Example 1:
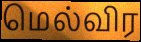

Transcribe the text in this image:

மெல்விர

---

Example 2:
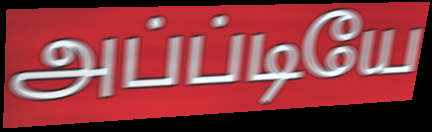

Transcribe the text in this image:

அப்ப்டியே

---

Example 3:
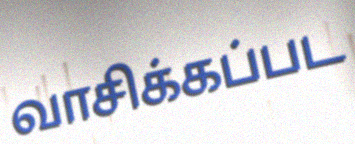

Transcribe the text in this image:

வாசிக்கப்பட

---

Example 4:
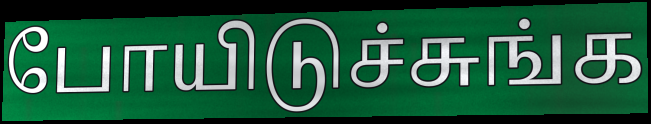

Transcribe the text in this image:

போயிடுச்சுங்க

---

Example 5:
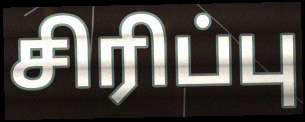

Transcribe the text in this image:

சிரிப்பு